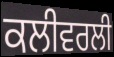
ਕਲੀਵਰਲੀ